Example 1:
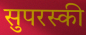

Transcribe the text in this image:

सुपरस्की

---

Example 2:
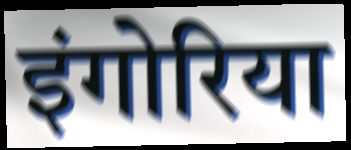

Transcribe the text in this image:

इंगोरिया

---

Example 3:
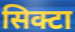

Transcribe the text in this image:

सिक्टा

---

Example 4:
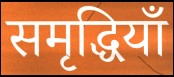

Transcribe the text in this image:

समृद्धियाँ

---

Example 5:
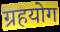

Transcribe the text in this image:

ग्रहयोग